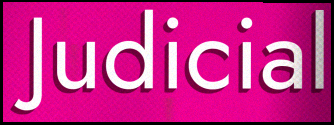
Judicial